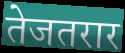
तेजतरार